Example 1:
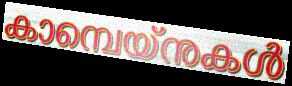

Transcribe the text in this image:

കാമ്പെയ്നുകൾ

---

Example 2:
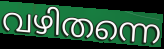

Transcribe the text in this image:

വഴിതന്നെ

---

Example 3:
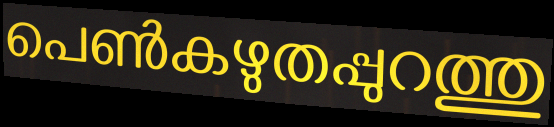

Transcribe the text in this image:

പെൺകഴുതപ്പുറത്തു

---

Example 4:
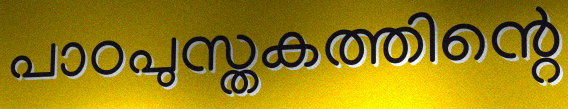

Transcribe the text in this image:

പാഠപുസ്തകത്തിന്റെ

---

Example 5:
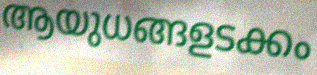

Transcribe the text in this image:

ആയുധങ്ങളടക്കം